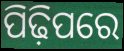
ପିଢ଼ିପରେ